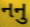
નનુ